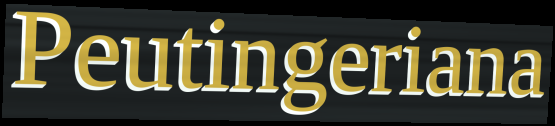
Peutingeriana